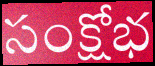
సంక్షోభ